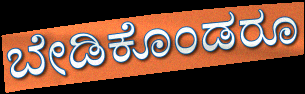
ಬೇಡಿಕೊಂಡರೂ